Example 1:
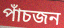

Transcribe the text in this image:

পাঁচজন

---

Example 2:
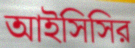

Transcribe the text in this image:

আইসিসির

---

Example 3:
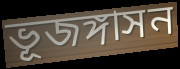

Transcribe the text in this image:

ভূজঙ্গাসন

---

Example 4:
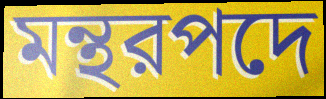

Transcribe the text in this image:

মন্থরপদে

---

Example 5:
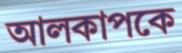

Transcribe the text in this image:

আলকাপকে